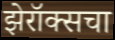
झेरॉक्सचा